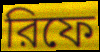
রিফে